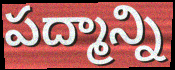
పద్మాన్ని